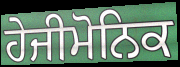
ਹੇਜੀਮੋਨਿਕ